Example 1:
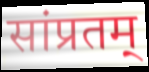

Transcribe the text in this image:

सांप्रतम्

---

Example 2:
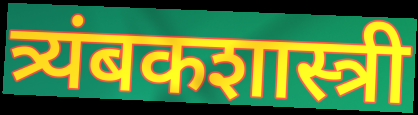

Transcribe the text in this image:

त्र्यंबकशास्त्री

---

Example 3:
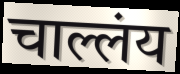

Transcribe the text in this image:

चाल्लंय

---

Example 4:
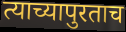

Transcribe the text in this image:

त्याच्यापुरताच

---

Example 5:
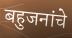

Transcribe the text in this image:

बहुजनांचे